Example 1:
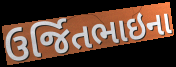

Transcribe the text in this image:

ઉર્જિતભાઇના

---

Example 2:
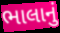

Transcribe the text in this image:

ભાલાનું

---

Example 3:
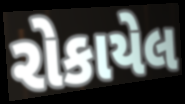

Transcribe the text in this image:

રોકાયેલ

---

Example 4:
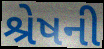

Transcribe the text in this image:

શ્રેષની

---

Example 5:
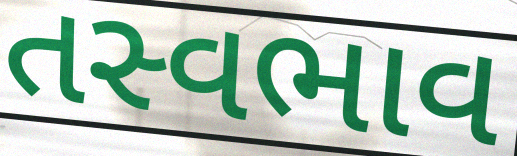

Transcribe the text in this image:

તસ્વભાવ